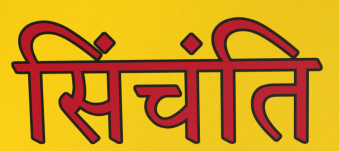
सिंचंति